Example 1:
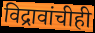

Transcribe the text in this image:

विद्रावांचीही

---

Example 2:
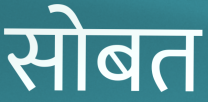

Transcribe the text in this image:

सोबत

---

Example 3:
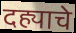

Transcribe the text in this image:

दह्याचे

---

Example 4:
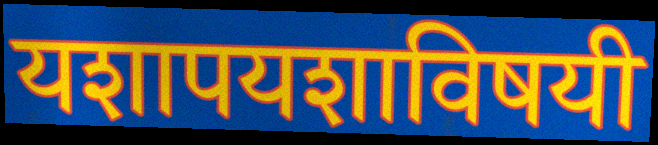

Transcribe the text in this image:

यशापयशाविषयी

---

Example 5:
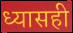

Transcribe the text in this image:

ध्यासही